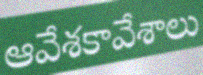
ఆవేశకావేశాలు